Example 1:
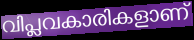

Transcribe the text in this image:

വിപ്ലവകാരികളാണ്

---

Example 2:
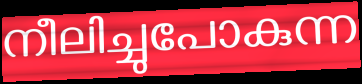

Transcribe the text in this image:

നീലിച്ചുപോകുന്ന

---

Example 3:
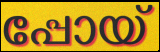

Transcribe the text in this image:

പ്പോയ്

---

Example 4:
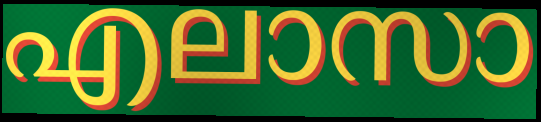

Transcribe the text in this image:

എലാസാ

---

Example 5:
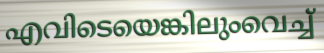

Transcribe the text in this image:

എവിടെയെങ്കിലുംവെച്ച്